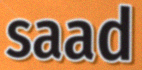
saad